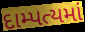
દામ્પત્યમાં